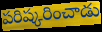
పరిష్కరించాడు